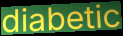
diabetic